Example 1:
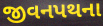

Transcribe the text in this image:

જીવનપથના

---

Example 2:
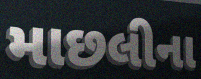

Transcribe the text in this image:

માછલીના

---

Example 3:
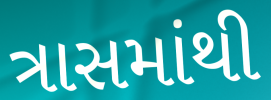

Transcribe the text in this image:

ત્રાસમાંથી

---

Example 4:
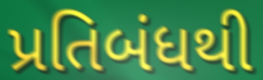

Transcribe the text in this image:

પ્રતિબંધથી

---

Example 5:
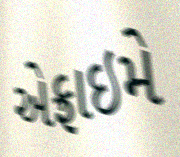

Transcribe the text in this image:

એફ્રાઇમે